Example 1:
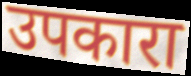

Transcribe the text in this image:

उपकारा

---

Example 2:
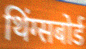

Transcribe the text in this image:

थिंग्सबोर्ड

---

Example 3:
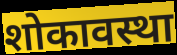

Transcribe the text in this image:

शोकावस्था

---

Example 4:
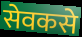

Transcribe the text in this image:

सेवकसे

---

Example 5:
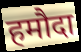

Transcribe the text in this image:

हमौदा